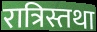
रात्रिस्तथा